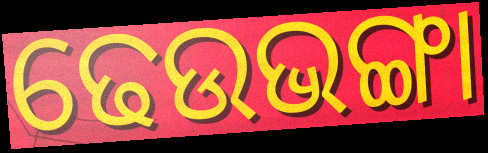
ଢେଉଭଙ୍ଗା